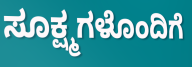
ಸೂಕ್ಷ್ಮಗಳೊಂದಿಗೆ